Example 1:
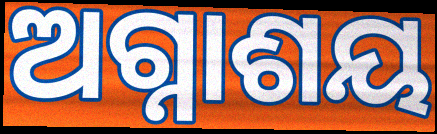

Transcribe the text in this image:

ଅଗ୍ନାଶୟ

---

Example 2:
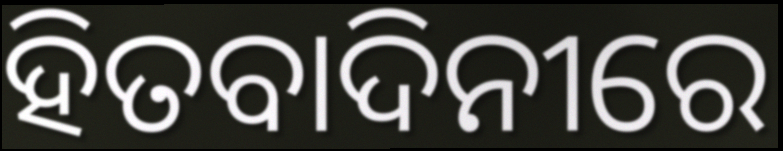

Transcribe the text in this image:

ହିତବାଦିନୀରେ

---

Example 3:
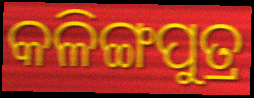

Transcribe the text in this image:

କଳିଙ୍ଗପୁତ୍ର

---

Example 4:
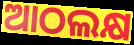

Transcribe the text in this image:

ଆଠଲକ୍ଷ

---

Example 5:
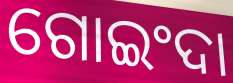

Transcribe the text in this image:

ଗୋଇଂଦା